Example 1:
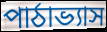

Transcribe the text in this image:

পাঠাভ্যাস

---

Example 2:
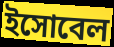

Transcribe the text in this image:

ইসোবেল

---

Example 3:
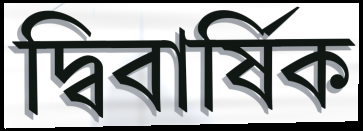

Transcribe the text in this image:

দ্বিবার্ষিক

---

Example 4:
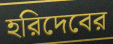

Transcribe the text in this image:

হরিদেবের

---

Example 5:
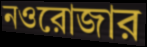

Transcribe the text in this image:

নওরোজার